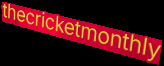
thecricketmonthly